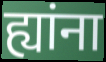
ह्यांना